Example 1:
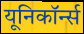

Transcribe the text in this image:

यूनिकॉर्न्स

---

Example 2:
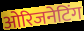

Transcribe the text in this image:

ओरिजनेटिंग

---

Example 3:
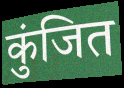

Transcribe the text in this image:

कुंजित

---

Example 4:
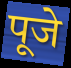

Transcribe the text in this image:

पूजे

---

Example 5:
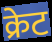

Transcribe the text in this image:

क्रेट